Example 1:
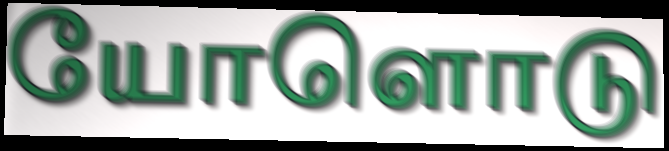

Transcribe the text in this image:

யோளொடு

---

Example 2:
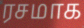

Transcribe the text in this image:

ரசமாக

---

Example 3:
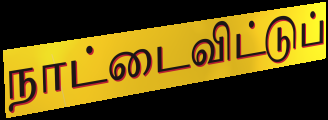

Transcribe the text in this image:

நாட்டைவிட்டுப்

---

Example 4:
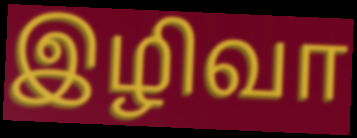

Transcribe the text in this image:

இழிவா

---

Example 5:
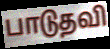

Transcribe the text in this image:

பாடுதவி